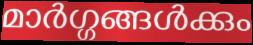
മാർഗ്ഗങ്ങൾക്കും